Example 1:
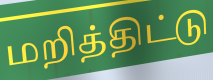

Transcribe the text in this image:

மறித்திட்டு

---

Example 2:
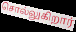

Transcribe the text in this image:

சொல்லுகிறார்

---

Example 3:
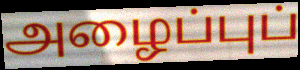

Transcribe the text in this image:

அழைப்புப்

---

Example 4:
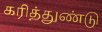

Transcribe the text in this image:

கரித்துண்டு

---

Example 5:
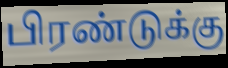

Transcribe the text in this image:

பிரண்டுக்கு